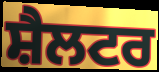
ਸ਼ੈਲਟਰ